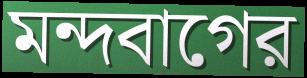
মন্দবাগের